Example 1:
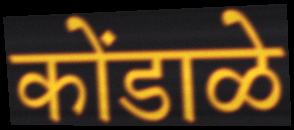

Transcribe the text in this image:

कोंडाळे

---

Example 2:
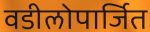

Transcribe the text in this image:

वडीलोपार्जित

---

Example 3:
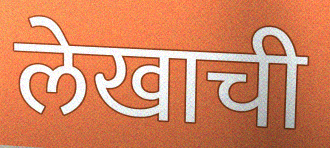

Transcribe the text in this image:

लेखाची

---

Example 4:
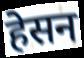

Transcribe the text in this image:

हेसन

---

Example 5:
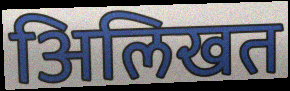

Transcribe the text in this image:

अिलिखत